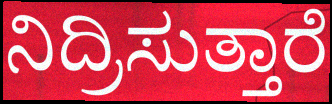
ನಿದ್ರಿಸುತ್ತಾರೆ